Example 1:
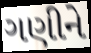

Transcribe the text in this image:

ગણીને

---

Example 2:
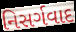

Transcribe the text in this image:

નિસર્ગવાદ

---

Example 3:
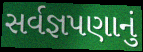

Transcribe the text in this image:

સર્વજ્ઞપણાનું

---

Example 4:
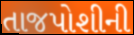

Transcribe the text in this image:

તાજપોશીની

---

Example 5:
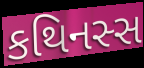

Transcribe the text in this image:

કથિનસ્સ